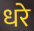
धरे